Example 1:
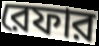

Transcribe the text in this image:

রেফার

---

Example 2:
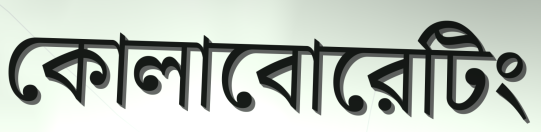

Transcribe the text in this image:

কোলাবোরেটিং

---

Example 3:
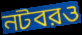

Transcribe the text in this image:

নটবরও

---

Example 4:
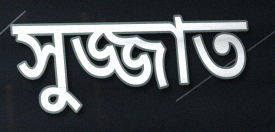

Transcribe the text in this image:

সুজ্জাত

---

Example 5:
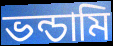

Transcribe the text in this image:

ভন্ডামি